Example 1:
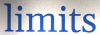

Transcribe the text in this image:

limits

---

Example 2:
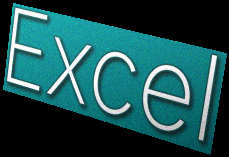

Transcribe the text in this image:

Excel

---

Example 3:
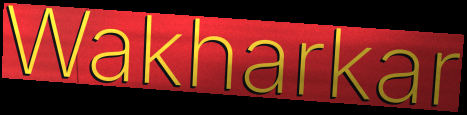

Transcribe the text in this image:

Wakharkar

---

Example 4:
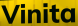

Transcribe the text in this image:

Vinita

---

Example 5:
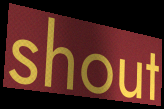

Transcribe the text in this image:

shout